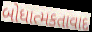
બોધાત્મકતાવાદ